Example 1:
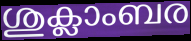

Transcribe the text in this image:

ശുക്ലാംബര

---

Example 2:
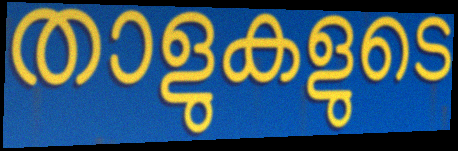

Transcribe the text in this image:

താളുകളുടെ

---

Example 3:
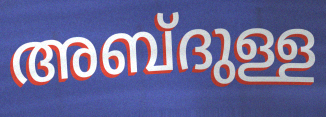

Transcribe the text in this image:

അബ്ദുള്ള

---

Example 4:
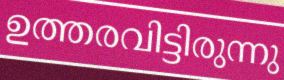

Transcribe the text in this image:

ഉത്തരവിട്ടിരുന്നു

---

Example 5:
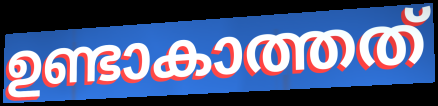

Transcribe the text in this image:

ഉണ്ടാകാത്തത്